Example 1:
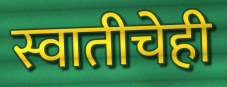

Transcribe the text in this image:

स्वातीचेही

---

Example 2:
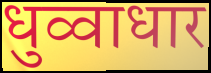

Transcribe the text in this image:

धुव्वाधार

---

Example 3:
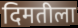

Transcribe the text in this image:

दिमतीला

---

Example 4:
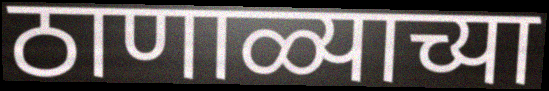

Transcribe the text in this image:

ठाणाळ्याच्या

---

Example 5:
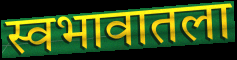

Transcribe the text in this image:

स्वभावातला